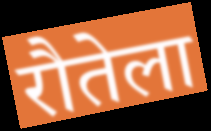
रौतेला